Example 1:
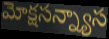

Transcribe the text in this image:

మోక్షసన్న్యాస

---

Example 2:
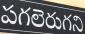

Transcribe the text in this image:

పగలెరుగని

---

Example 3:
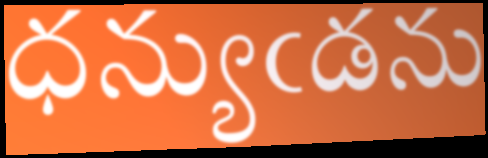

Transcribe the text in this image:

ధన్యుఁడను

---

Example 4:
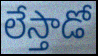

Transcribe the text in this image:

లేస్తాడో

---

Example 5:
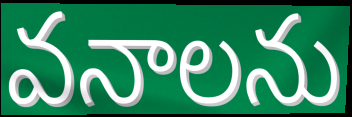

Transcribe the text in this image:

వనాలను